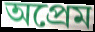
অপ্রেম